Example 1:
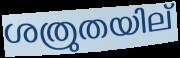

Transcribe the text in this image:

ശത്രുതയില്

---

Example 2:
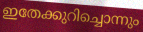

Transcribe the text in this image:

ഇതേക്കുറിച്ചൊന്നും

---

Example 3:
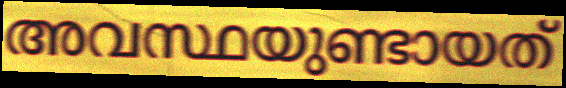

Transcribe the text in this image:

അവസ്ഥയുണ്ടായത്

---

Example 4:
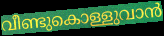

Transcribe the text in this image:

വീണ്ടുകൊള്ളുവാൻ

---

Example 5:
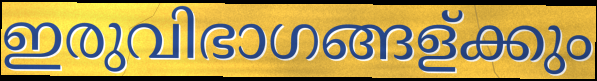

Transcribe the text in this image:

ഇരുവിഭാഗങ്ങള്ക്കും